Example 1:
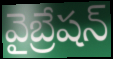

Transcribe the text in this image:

వైబ్రేషన్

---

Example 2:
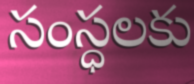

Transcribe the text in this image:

సంస్ధలకు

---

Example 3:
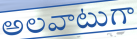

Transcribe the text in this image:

అలవాటుగా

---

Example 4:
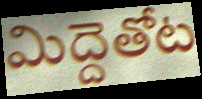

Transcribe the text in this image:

మిద్దెతోట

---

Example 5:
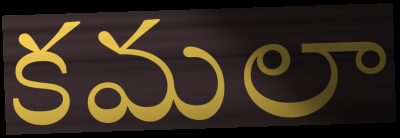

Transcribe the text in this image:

కమలా